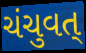
ચંચુવત્